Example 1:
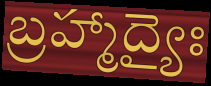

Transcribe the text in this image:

బ్రహ్మాద్యైః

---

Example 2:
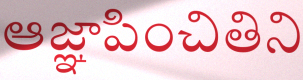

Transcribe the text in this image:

ఆజ్ఞాపించితిని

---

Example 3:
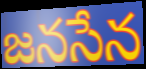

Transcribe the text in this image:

జనసేన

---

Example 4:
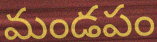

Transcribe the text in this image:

మండపం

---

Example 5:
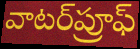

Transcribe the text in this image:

వాటర్‌ప్రూఫ్